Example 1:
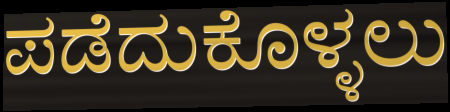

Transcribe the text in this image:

ಪಡೆದುಕೊಳ್ಳಲು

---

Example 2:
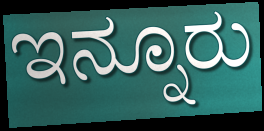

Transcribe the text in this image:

ಇನ್ನೂರು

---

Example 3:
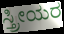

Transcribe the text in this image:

ಸ್ತ್ರೀಯರ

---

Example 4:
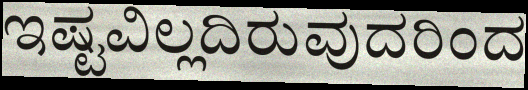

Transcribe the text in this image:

ಇಷ್ಟವಿಲ್ಲದಿರುವುದರಿಂದ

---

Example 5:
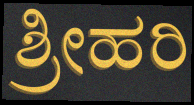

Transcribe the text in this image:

ಶ್ರೀಹರಿ